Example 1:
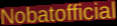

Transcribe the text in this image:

Nobatofficial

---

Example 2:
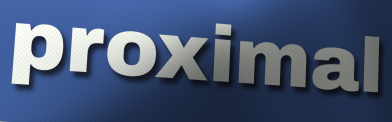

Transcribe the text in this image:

proximal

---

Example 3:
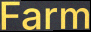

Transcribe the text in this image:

Farm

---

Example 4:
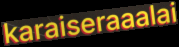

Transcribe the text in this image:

karaiseraaalai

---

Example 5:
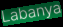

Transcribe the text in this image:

Labanya